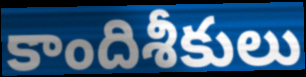
కాందిశీకులు